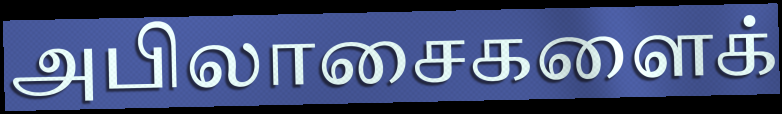
அபிலாசைகளைக்